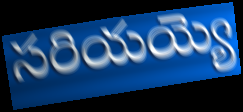
సరియయ్యె